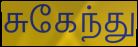
சுகேந்து